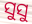
ସୁସୁ